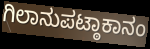
ಗಿಲಾನುಪಟ್ಠಾಕಾನಂ